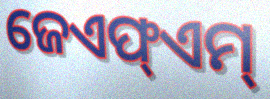
ଜେଏଫ୍ଏମ୍